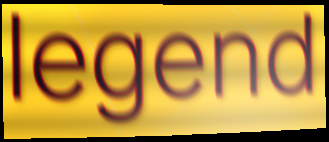
legend